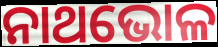
ନାଥଭୋଳ